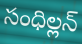
సంధిల్లన్